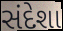
સંદેશા